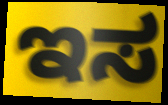
ಇಸ